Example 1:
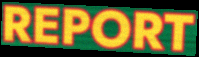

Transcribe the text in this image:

REPORT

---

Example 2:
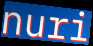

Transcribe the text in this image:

nuri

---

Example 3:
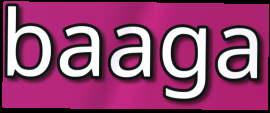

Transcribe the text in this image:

baaga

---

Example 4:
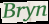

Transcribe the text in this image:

Bryn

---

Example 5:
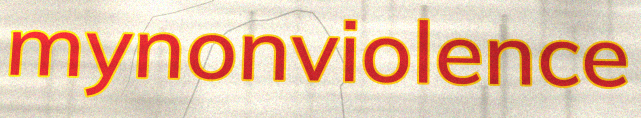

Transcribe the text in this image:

mynonviolence